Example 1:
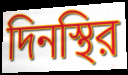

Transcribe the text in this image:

দিনস্থির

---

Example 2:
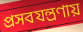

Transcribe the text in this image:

প্রসবযন্ত্রণায়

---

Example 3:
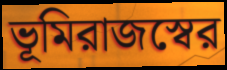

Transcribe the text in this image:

ভূমিরাজস্বের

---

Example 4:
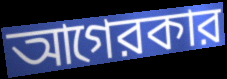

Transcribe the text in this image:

আগেরকার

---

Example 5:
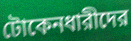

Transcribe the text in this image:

টোকেনধারীদের